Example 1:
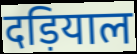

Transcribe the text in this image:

दड़ियाल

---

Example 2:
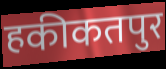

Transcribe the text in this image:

हकीकतपुर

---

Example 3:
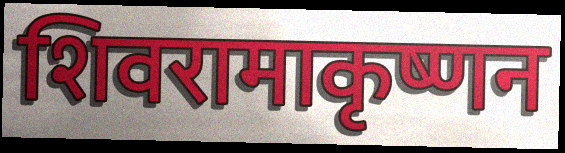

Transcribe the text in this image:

शिवरामाकृष्णन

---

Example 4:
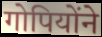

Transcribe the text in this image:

गोपियोंने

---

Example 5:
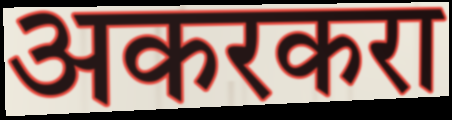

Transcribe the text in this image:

अकरकरा